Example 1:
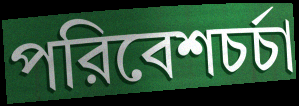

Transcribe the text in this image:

পরিবেশচর্চা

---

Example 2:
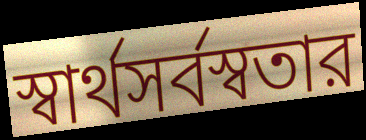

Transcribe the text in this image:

স্বার্থসর্বস্বতার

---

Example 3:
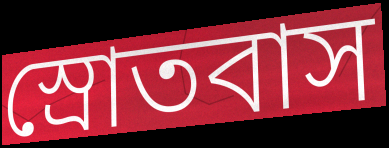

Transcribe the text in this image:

স্রোতবাস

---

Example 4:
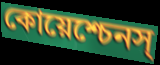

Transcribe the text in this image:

কোয়েশ্চেনস্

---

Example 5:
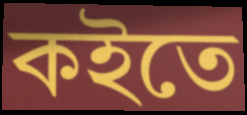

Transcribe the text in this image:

কইতে